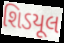
શિડયૂલ